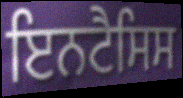
ਇਨਟੈਸਿਸ